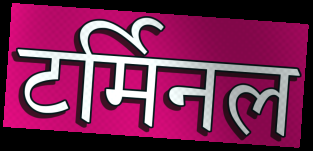
टर्मिनल